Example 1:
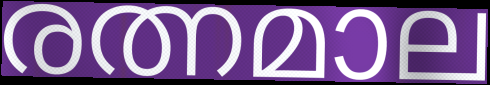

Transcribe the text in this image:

രത്നമാല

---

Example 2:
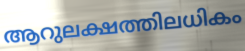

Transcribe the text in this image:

ആറുലക്ഷത്തിലധികം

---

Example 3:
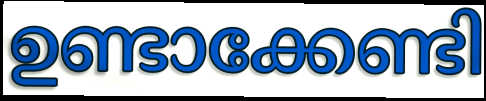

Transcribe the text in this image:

ഉണ്ടാക്കേണ്ടി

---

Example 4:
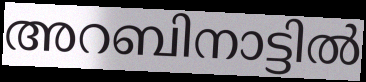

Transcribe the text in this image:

അറബിനാട്ടിൽ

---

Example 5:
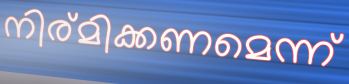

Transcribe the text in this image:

നിര്മിക്കണമെന്ന്